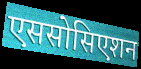
एससोसिएशन